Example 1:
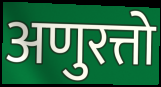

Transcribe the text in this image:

अणुरत्तो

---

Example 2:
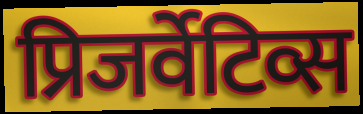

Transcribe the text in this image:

प्रिजर्वेटिव्स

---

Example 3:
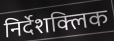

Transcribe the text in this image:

निर्देशक्लिक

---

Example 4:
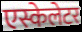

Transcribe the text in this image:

एस्केलेटर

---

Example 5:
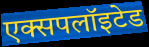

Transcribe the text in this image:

एक्सपलॉइटेड